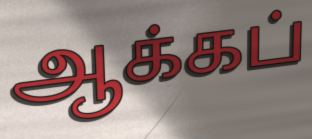
ஆக்கப்